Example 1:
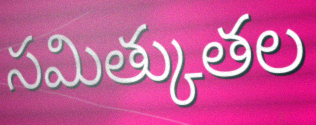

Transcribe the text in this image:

సమిత్కుతల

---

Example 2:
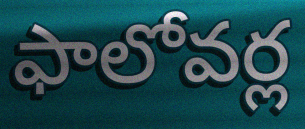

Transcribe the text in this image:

ఫాలోవర్ల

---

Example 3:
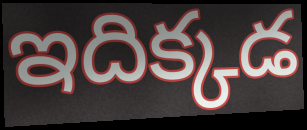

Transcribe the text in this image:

ఇదిక్కడ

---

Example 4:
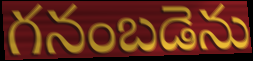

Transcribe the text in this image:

గనంబడెను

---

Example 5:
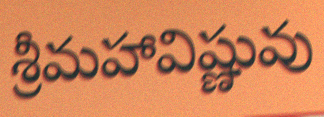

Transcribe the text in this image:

శ్రీమహావిష్ణువు